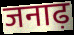
जनाढ़